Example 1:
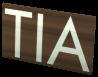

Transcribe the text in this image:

TIA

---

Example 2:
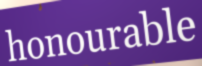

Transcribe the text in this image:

honourable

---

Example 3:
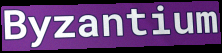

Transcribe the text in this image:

Byzantium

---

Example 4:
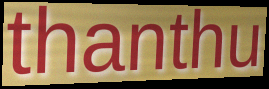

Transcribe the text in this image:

thanthu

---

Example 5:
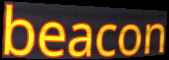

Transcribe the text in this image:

beacon